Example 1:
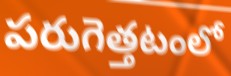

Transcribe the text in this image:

పరుగెత్తటంలో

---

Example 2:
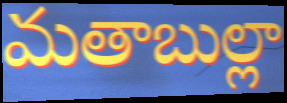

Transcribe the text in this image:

మతాబుల్లా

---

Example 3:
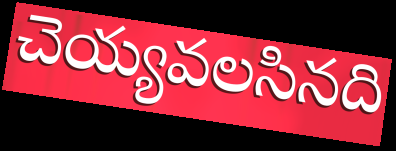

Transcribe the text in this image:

చెయ్యవలసినది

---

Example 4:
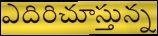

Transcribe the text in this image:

ఎదిరిచూస్తున్న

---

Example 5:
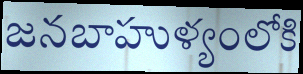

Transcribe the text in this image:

జనబాహుళ్యంలోకి